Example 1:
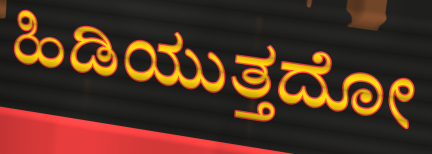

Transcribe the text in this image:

ಹಿಡಿಯುತ್ತದೋ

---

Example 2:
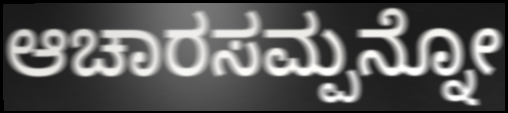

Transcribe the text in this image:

ಆಚಾರಸಮ್ಪನ್ನೋ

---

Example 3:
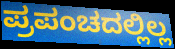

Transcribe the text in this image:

ಪ್ರಪಂಚದಲ್ಲಿಲ್ಲ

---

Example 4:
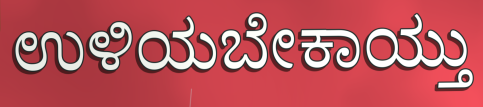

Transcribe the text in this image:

ಉಳಿಯಬೇಕಾಯ್ತು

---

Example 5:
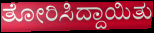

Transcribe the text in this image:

ತೋರಿಸಿದ್ದಾಯಿತು